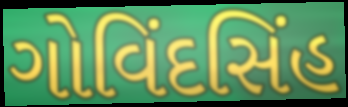
ગોવિંદસિંહ